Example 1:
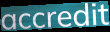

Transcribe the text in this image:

accredit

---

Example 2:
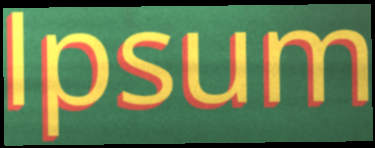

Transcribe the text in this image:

Ipsum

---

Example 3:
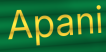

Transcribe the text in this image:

Apani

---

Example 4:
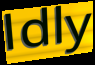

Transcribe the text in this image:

Idly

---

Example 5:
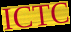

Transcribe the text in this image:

ICTC